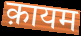
क़ायम